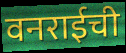
वनराईची